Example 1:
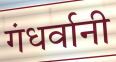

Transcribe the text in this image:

गंधर्वानी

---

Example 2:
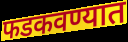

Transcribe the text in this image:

फडकवण्यात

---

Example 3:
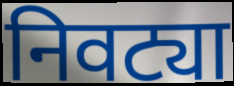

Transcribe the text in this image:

निवट्या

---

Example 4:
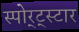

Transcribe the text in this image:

स्पोर्ट्स्टार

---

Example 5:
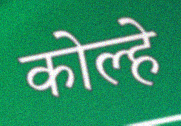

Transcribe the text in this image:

कोल्हे